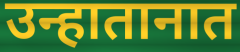
उन्हातानात